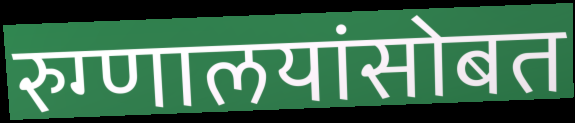
रुग्णालयांसोबत